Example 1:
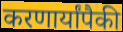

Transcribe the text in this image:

करणार्यांपैकी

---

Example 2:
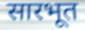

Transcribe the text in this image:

सारभूत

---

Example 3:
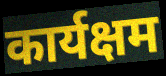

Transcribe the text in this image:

कार्यक्षम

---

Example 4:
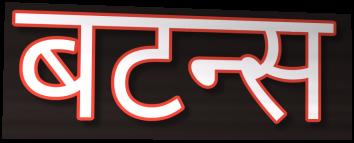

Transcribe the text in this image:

बटन्स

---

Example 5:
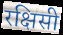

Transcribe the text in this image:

रक्षिसी